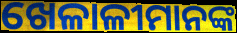
ଖେଳାଳୀମାନଙ୍କ